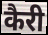
कैरी